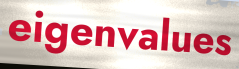
eigenvalues